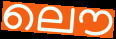
ലൌ